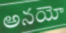
అనయో